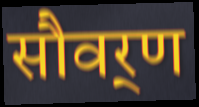
सौवर्ण